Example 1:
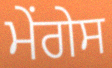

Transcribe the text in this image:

ਮੇਂਗੇਸ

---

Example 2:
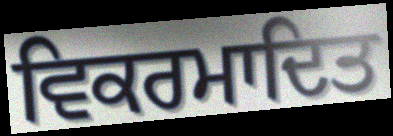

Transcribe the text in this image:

ਵਿਕਰਮਾਦਿਤ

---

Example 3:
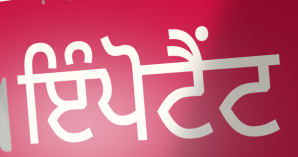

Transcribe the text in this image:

ਇੰਪੋਟੈਂਟ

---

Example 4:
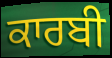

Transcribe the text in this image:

ਕਾਰਬੀ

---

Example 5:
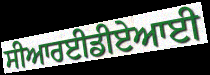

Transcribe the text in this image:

ਸੀਆਰਈਡੀਏਆਈ